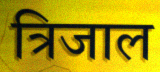
त्रिजाल